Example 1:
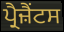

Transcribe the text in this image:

ਪ੍ਰੈਜ਼ੈਂਟਸ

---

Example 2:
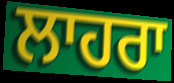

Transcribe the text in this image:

ਲਾਹਰਾ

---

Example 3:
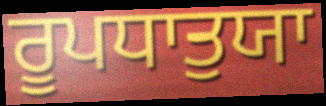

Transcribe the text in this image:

ਰੂਪਧਾਤੁਯਾ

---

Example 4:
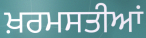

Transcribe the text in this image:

ਖ਼ਰਮਸਤੀਆਂ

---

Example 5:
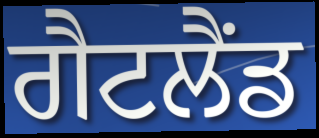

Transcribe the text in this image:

ਗੈਟਲੈਂਡ